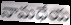
నామధేయ